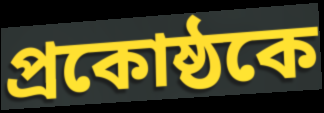
প্রকোষ্ঠকে